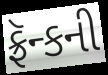
ફ્રૅન્કની